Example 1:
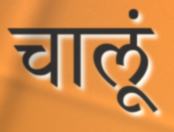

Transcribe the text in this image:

चालूं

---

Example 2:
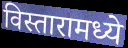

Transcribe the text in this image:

विस्तारामध्ये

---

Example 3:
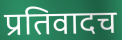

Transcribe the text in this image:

प्रतिवादच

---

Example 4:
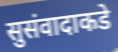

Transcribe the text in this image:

सुसंवादाकडे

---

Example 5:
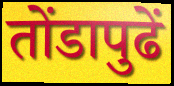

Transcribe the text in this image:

तोंडापुढें